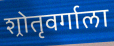
श्रोतृवर्गाला